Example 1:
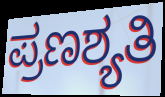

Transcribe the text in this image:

ಪ್ರಣಶ್ಯತಿ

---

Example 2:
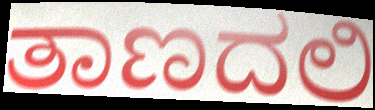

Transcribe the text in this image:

ತಾಣದಲಿ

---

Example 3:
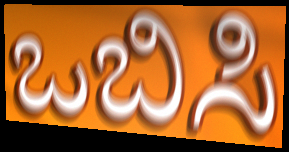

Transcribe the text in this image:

ಒಬಿಸಿ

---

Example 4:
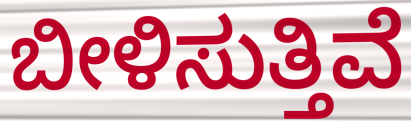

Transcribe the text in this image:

ಬೀಳಿಸುತ್ತಿವೆ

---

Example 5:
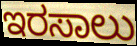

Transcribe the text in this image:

ಇರಸಾಲು